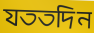
যততদিন